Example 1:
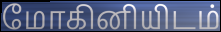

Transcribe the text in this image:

மோகினியிடம்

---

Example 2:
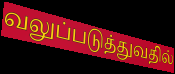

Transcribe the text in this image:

வலுப்படுத்துவதில்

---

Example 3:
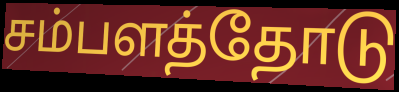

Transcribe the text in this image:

சம்பளத்தோடு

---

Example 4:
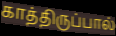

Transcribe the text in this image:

காத்திருப்பால்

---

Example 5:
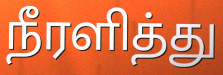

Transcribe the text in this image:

நீரளித்து